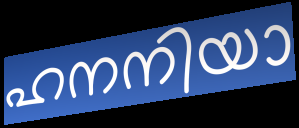
ഹനനിയാ